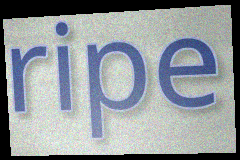
ripe